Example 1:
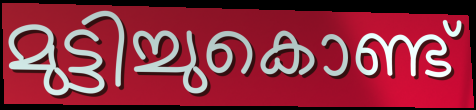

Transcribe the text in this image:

മുട്ടിച്ചുകൊണ്ട്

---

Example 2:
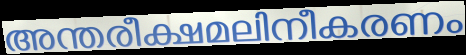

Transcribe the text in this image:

അന്തരീക്ഷമലിനീകരണം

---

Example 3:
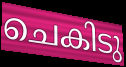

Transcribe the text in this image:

ചെകിടു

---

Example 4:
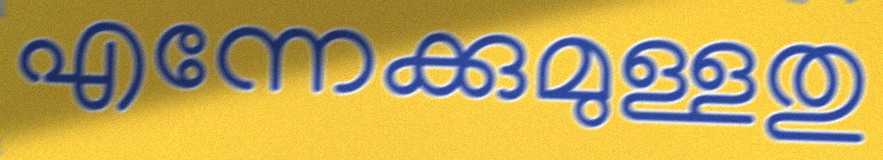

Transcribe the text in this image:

എന്നേക്കുമുള്ളതു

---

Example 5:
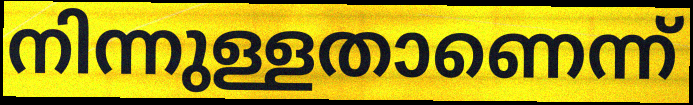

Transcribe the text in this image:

നിന്നുള്ളതാണെന്ന്